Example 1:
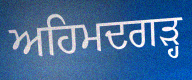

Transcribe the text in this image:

ਅਹਿਮਦਗੜ੍ਹ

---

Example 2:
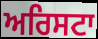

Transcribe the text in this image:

ਅਰਿਸਟਾ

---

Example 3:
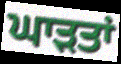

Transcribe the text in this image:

ਘਾਡ਼ਤਾਂ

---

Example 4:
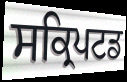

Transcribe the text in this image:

ਸਕ੍ਰਿਪਟਡ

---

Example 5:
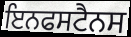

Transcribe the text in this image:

ਇਨਫਸਟੈਨਸ